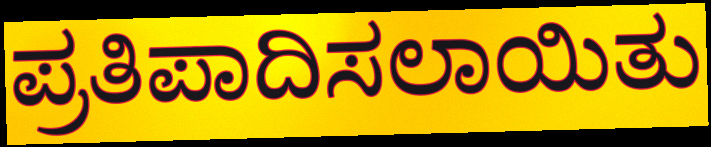
ಪ್ರತಿಪಾದಿಸಲಾಯಿತು